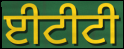
ਈਟੀਟੀ